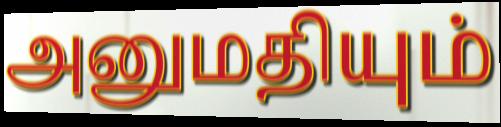
அனுமதியும்